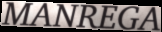
MANREGA